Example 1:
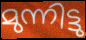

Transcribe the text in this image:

മുന്നിട്ടു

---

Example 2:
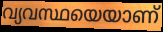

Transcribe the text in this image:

വ്യവസ്ഥയെയാണ്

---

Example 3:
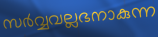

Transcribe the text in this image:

സർവ്വവല്ലഭനാകുന്ന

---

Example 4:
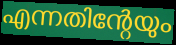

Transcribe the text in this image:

എന്നതിന്റേയും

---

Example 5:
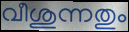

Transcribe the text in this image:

വീശുന്നതും